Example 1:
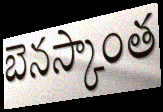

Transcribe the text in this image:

బెనస్కాంత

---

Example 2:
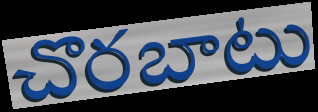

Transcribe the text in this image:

చొరబాటు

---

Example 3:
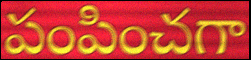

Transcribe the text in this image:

పంపించగా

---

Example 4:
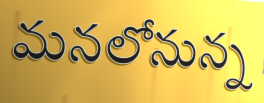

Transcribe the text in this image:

మనలోనున్న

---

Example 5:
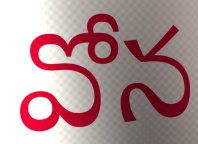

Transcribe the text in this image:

వోన